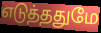
எடுத்ததுமே